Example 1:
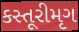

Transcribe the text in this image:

કસ્તૂરીમૃગ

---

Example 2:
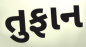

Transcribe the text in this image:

તુફાન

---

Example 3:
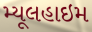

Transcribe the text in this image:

મ્યૂલહાઇમ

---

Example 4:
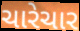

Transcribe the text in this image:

ચારેચાર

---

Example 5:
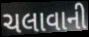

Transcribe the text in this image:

ચલાવાની